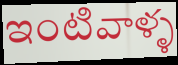
ఇంటివాళ్ళ